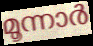
മൂന്നാർ